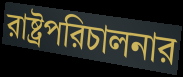
রাষ্ট্রপরিচালনার